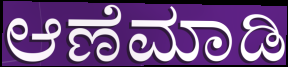
ಆಣೆಮಾಡಿ